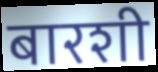
बारशी